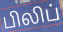
பிலிப்